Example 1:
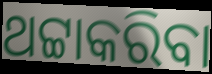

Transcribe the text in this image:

ଥଟ୍ଟାକରିବା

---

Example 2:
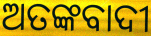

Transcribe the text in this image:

ଅତଙ୍କବାଦୀ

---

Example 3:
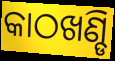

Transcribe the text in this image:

କାଠଖଣ୍ଡି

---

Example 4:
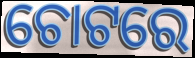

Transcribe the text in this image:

ଚୋଟରେ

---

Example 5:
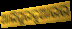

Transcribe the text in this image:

ଆଲିପୁରଦୁଆରର